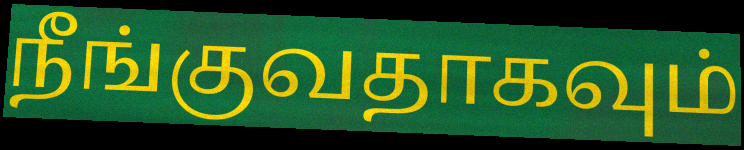
நீங்குவதாகவும்